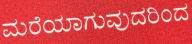
ಮರೆಯಾಗುವುದರಿಂದ